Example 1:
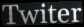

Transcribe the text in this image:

Twiter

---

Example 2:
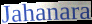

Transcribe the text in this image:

Jahanara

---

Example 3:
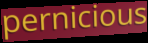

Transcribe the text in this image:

pernicious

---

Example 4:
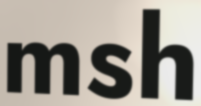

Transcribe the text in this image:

msh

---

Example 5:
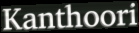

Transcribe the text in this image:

Kanthoori